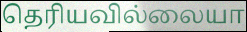
தெரியவில்லையா